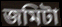
জমিটা